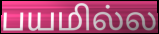
பயமில்ல